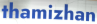
thamizhan